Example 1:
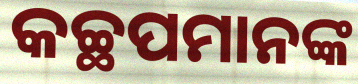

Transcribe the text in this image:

କଚ୍ଛପମାନଙ୍କ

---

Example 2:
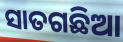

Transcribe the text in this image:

ସାତଗଛିଆ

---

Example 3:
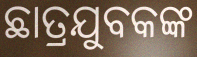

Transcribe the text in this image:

ଛାତ୍ରଯୁବକଙ୍କ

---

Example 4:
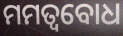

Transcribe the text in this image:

ମମତ୍ବବୋଧ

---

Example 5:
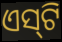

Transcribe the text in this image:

ଏସ୍‌ଟି